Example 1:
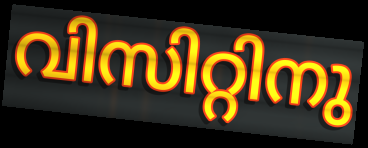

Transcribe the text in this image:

വിസിറ്റിനു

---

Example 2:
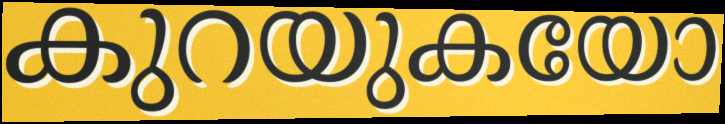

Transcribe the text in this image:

കുറയുകയോ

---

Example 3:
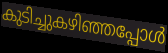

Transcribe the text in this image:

കുടിച്ചുകഴിഞ്ഞപ്പോൾ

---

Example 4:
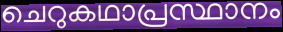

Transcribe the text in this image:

ചെറുകഥാപ്രസ്ഥാനം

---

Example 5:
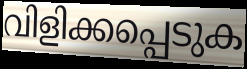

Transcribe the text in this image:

വിളിക്കപ്പെടുക